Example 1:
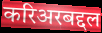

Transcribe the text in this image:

करिअरबद्दल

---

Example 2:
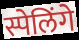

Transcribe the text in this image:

स्पेलिंगे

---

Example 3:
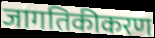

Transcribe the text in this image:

जागतिकीकरण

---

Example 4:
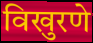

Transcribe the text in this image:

विखुरणे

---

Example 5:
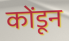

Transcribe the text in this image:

कोंडून